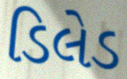
ડિલેડ